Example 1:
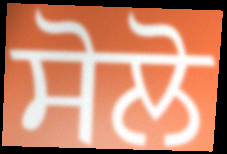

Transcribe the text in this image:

ਸੋਲੋ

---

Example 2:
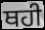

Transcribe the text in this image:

ਥਹੀ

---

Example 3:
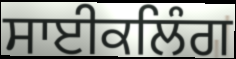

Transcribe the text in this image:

ਸਾਈਕਲਿੰਗ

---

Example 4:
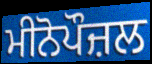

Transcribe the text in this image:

ਮੀਨੋਪੌਜ਼ਲ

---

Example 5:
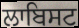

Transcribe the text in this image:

ਲਾਬਿਸਟ